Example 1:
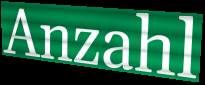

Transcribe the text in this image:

Anzahl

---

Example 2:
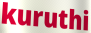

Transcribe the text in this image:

kuruthi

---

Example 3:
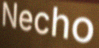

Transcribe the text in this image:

Necho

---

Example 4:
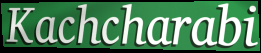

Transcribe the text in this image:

Kachcharabi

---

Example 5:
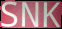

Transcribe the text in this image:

SNK